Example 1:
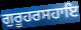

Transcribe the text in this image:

ਗੁਰੂਹਰਸਹਾਇ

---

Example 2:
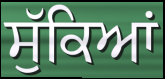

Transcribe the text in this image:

ਸੁੱਕਿਆਂ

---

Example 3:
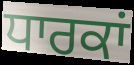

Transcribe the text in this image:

ਧਾਰਕਾਂ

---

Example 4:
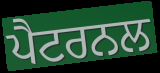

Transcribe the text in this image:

ਪੈਟਰਨਲ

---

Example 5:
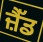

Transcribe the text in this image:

ਜ਼ੈੱਡ